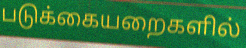
படுக்கையறைகளில்